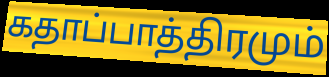
கதாப்பாத்திரமும்